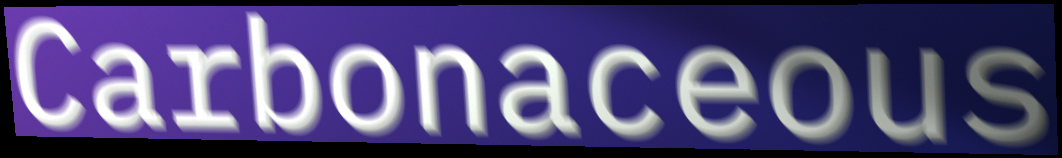
Carbonaceous